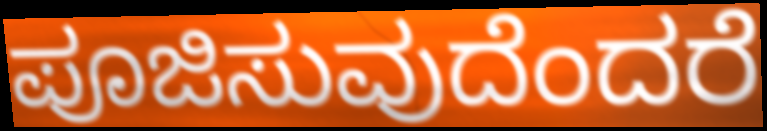
ಪೂಜಿಸುವುದೆಂದರೆ